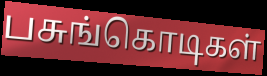
பசுங்கொடிகள்